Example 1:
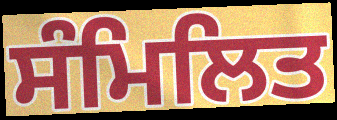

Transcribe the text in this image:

ਸੰਮਿਲਿਤ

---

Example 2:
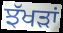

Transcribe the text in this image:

ਝੱਖੜਾਂ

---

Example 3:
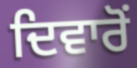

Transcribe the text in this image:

ਦਿਵਾਰੋਂ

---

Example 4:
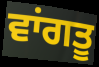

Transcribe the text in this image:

ਵਾਂਗਤੂ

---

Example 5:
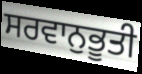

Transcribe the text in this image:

ਸਰਵਾਨੁਭੂਤੀ